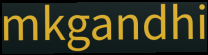
mkgandhi